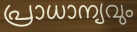
പ്രാധാന്യവും